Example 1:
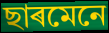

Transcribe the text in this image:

ছাৰমেনে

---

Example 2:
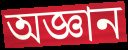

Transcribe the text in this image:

অজ্ঞান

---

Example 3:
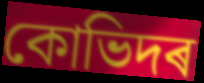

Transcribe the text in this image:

কোভিদৰ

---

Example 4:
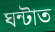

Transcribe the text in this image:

ঘন্টাত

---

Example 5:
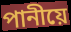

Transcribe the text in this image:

পানীয়ে